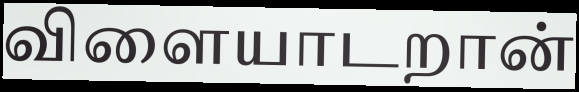
விளையாடறான்